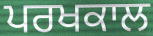
ਪਰਖਕਾਲ